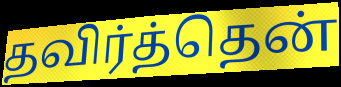
தவிர்த்தென்